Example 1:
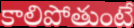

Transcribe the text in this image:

కాలిపోతుంటే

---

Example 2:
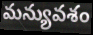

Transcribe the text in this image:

మన్యువశం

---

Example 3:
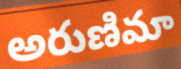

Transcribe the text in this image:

అరుణిమా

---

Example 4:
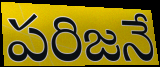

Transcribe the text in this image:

పరిజనే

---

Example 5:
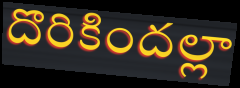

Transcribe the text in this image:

దొరికిందల్లా